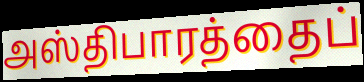
அஸ்திபாரத்தைப்